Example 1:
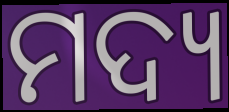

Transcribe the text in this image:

ମଦ୍ୟ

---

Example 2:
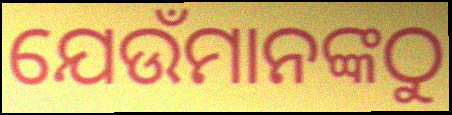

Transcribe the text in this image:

ଯେଉଁମାନଙ୍କଠୁ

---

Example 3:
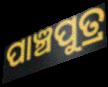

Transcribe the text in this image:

ପାଞ୍ଚପୁତ୍ର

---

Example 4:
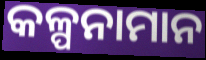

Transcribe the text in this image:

କଳ୍ପନାମାନ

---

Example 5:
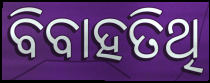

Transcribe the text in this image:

ବିବାହତିଥି